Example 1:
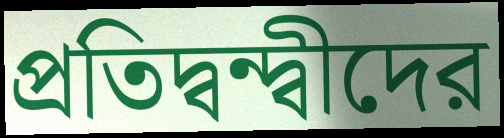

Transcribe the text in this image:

প্রতিদ্বন্দ্বীদের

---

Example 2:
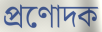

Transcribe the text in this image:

প্রণোদক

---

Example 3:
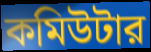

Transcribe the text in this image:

কমিউটার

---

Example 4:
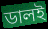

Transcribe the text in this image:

ডালই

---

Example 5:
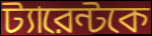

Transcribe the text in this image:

ট্যারেন্টকে